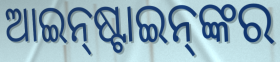
ଆଇନ୍‌ଷ୍ଟାଇନ୍‌ଙ୍କର